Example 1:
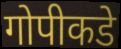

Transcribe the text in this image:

गोपीकडे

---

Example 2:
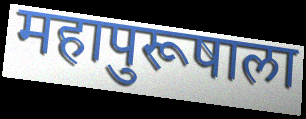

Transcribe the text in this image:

महापुरूषाला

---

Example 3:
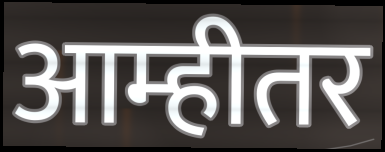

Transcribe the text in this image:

आम्हीतर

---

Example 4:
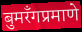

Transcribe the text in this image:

बुमरँगप्रमाणे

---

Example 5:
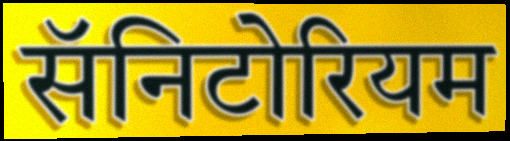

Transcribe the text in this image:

सॅनिटोरियम